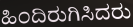
ಹಿಂದಿರುಗಿಸಿದರು